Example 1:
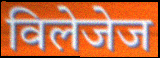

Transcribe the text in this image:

विलेजेज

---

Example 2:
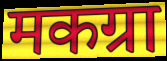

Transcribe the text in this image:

मकग्रा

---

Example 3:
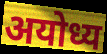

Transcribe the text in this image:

अयोध्य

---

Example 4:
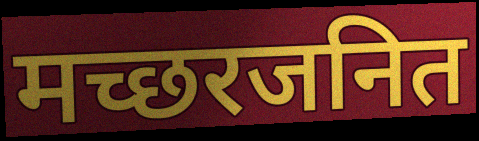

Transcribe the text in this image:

मच्छरजनित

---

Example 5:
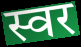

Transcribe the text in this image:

स्‍वर